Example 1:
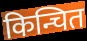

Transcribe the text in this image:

किन्चित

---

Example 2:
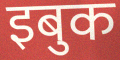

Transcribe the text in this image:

इबुक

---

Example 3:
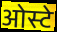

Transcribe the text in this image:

ओस्टे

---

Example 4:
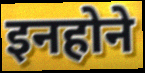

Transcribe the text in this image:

इनहोने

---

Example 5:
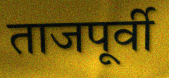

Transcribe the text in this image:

ताजपूर्वी